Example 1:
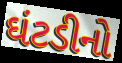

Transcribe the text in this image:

ઘંટડીનો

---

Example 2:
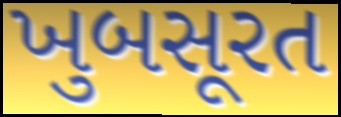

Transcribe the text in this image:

ખુબસૂરત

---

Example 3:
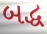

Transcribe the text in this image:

બદ્ધ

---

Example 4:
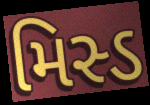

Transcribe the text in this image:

મિસ્ડ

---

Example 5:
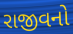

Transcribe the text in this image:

રાજીવનો